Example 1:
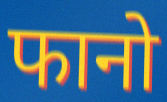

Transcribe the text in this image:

फानो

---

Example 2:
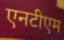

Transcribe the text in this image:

एनटीएम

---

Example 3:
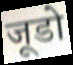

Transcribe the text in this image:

जूडो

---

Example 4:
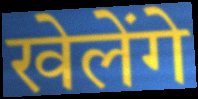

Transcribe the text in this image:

खेलेंगे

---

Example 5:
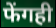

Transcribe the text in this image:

फेंगही